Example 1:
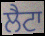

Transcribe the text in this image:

ਲੈਟਾ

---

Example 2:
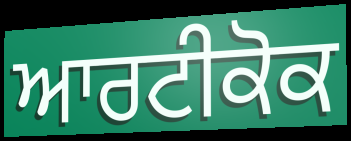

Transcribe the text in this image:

ਆਰਟੀਕੋਕ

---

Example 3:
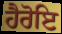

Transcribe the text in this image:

ਹੈਰੋਇ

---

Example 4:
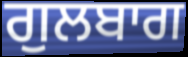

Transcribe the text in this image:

ਗੁਲਬਾਗ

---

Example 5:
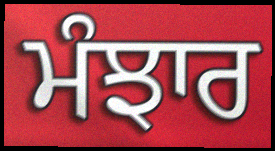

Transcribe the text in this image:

ਮੰਝਾਰ